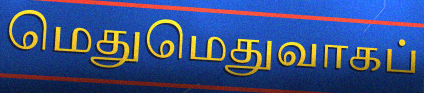
மெதுமெதுவாகப்